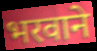
भरवाने